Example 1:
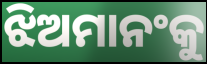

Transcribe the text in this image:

ଝିଅମାନଂକୁ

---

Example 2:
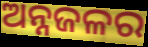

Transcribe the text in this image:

ଅନ୍ନଜଳର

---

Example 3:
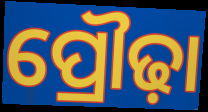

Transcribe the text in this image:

ପ୍ରୌଢ଼ା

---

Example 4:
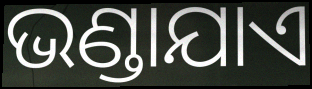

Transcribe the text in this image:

ଭଣ୍ଡାଯାଏ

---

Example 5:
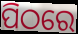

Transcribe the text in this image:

ପିଠରେ